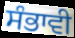
ਸੰਭਾਵੀ